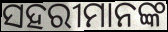
ସହରୀମାନଙ୍କ